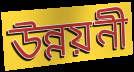
উন্নয়নী